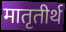
मातृतीर्थ